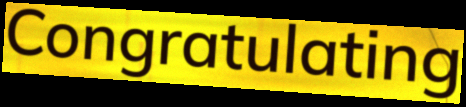
Congratulating